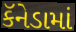
કૅનેડામાં